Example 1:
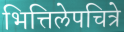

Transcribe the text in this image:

भित्तिलेपचित्रे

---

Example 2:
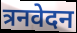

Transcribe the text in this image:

त्रनवेदन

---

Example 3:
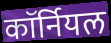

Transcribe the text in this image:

कॉर्नियल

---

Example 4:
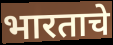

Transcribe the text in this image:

भारताचे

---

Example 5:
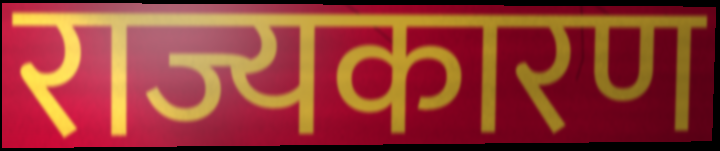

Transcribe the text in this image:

राज्यकारण